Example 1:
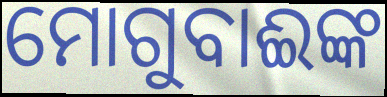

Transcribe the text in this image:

ମୋଗୁବାଈଙ୍କ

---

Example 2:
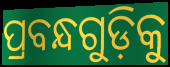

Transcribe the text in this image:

ପ୍ରବନ୍ଧଗୁଡ଼ିକୁ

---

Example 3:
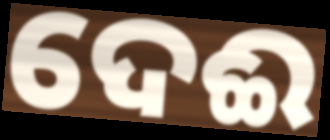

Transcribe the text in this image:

ଦେଈ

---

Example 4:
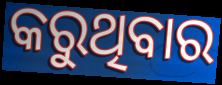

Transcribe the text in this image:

କରୁଥିବାର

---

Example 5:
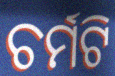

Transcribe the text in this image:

ଚର୍ମଟି